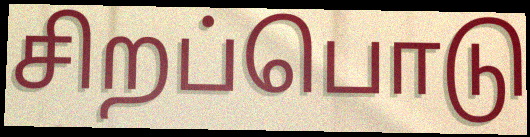
சிறப்பொடு